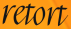
retort